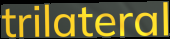
trilateral